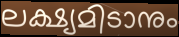
ലക്ഷ്യമിടാനും